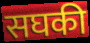
सघकी